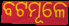
ବଟମୂଳେ